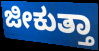
ಜೀಕುತ್ತಾ